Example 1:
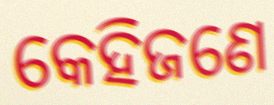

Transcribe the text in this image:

କେହିଜଣେ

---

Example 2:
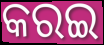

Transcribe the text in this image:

କରଇ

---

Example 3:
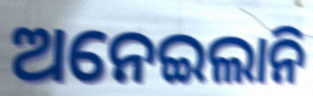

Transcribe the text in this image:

ଅନେଇଲାନି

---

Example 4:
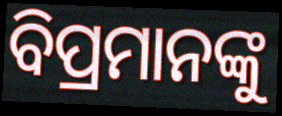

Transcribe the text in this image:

ବିପ୍ରମାନଙ୍କୁ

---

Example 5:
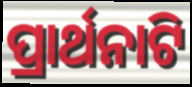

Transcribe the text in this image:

ପ୍ରାର୍ଥନାଟି